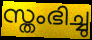
സ്തംഭിച്ചു